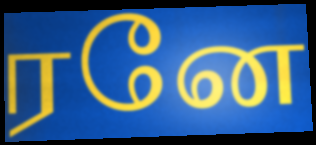
ரனே